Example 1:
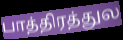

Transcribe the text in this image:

பாத்திரத்துல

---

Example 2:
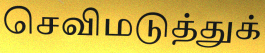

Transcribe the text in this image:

செவிமடுத்துக்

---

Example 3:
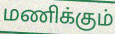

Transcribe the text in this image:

மணிக்கும்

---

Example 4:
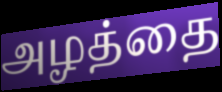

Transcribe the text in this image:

அழத்தை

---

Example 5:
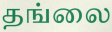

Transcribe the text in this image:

தங்லை